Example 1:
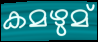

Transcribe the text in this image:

കമഴുമ്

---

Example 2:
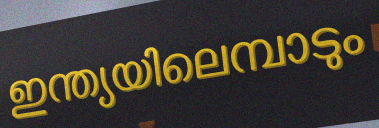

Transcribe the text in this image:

ഇന്ത്യയിലെമ്പാടും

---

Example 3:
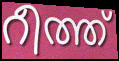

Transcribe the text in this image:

റീത്ത്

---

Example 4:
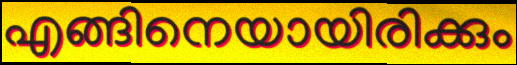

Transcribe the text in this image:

എങ്ങിനെയായിരിക്കും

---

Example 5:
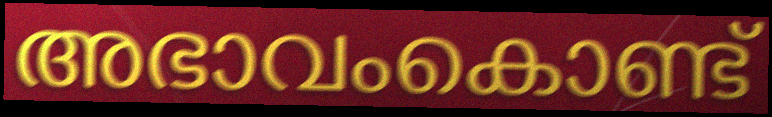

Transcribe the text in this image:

അഭാവംകൊണ്ട്